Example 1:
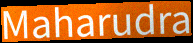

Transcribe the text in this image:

Maharudra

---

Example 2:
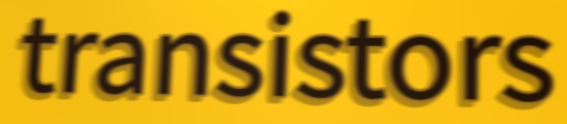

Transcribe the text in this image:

transistors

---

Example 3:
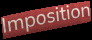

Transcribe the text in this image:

Imposition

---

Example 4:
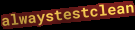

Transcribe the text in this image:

alwaystestclean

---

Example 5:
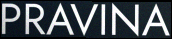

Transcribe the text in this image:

PRAVINA